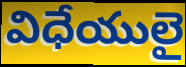
విధేయులై